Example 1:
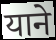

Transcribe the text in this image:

याने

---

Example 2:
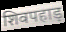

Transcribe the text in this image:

शिवपहाड़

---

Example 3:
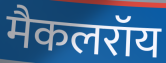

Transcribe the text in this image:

मैकलरॉय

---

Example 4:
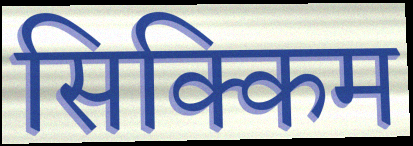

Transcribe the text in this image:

सिक्किम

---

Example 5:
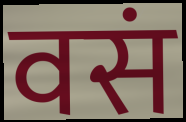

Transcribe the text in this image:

वसं